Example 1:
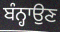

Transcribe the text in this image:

ਬੰਨ੍ਹਾਉਣ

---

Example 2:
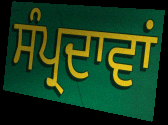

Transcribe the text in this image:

ਸੰਪ੍ਰਦਾਵਾਂ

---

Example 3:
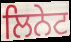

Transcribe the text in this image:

ਲਿਨੇਟ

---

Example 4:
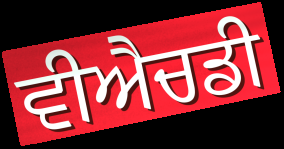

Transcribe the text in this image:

ਵੀਐਚਡੀ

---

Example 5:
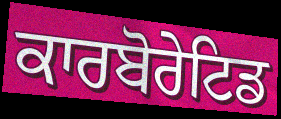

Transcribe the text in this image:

ਕਾਰਬੋਰੇਟਿਡ